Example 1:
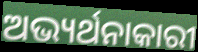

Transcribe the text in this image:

ଅଭ୍ୟର୍ଥନାକାରୀ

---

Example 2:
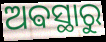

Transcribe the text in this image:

ଅଵସ୍ଥାରୁ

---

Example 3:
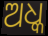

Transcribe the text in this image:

ଅଧ୍କ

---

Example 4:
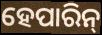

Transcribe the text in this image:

ହେପାରିନ୍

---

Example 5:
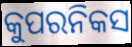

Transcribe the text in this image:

କୁପରନିକସ